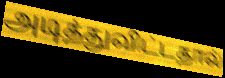
அடித்துவிட்டதால்